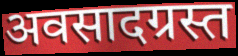
अवसादग्रस्त